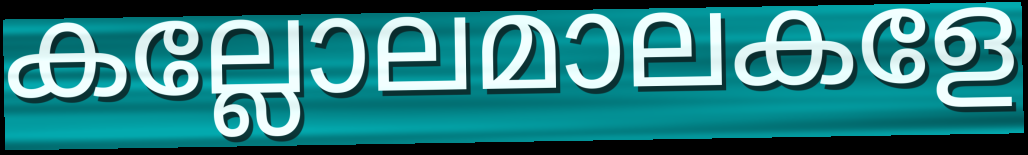
കല്ലോലമാലകളേ